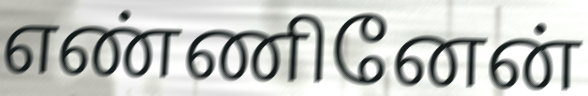
எண்ணினேன்